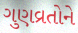
ગુણવ્રતોને